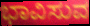
ಭಾವಿಸುವ